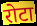
रोटा